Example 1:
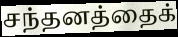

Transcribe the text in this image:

சந்தனத்தைக்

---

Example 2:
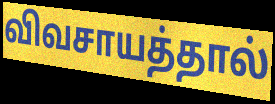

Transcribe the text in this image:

விவசாயத்தால்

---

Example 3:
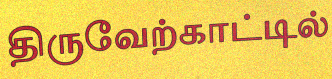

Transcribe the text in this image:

திருவேற்காட்டில்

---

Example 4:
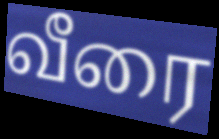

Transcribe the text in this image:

வீரை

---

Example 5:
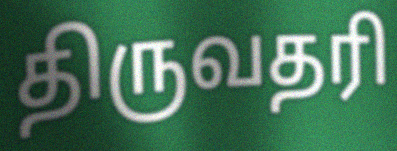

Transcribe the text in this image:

திருவதரி